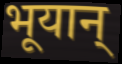
भूयान्